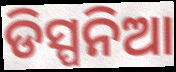
ଡିସ୍ପନିଆ